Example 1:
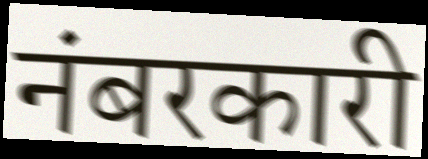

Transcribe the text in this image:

नंबरकारी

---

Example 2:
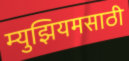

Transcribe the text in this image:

म्युझियमसाठी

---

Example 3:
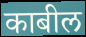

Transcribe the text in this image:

काबील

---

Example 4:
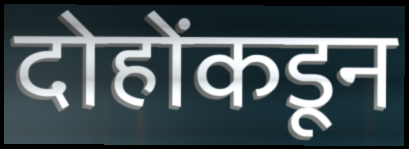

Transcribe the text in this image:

दोहोंकडून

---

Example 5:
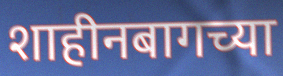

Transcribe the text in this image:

शाहीनबागच्या